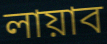
লায়াব